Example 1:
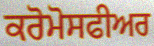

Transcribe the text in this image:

ਕਰੋਮੋਸਫੀਅਰ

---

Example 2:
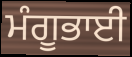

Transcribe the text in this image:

ਮੰਗੂਭਾਈ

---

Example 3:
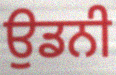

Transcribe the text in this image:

ਉਡਨੀ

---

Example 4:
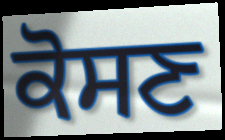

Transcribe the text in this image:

ਕੋਸਣ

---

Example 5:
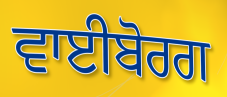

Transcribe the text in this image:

ਵਾਈਬੋਰਗ